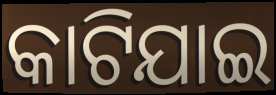
କାଟିଯାଇ